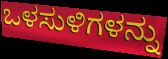
ಒಳಸುಳಿಗಳನ್ನು